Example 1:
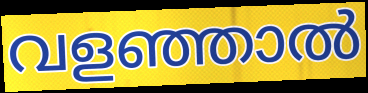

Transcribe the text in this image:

വളഞ്ഞാൽ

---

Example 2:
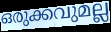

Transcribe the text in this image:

ഒരുക്കവുമല്ല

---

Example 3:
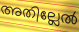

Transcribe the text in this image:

അതില്ലേൽ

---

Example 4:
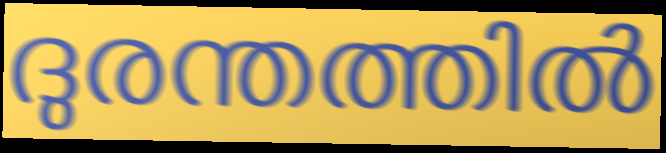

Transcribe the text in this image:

ദുരന്തത്തിൽ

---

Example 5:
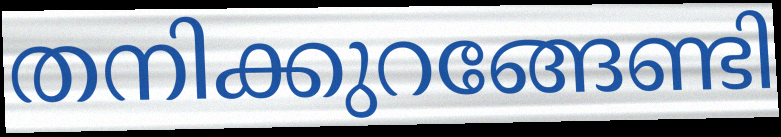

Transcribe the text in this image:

തനിക്കുറങ്ങേണ്ടി